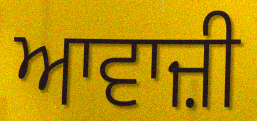
ਆਵਾਜ਼ੀ